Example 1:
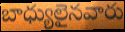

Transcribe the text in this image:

బాధ్యులైనవారు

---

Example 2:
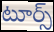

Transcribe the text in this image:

టూర్స్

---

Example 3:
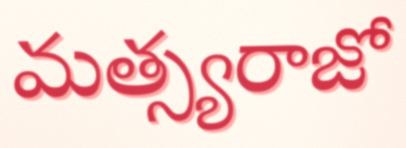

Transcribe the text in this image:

మత్స్యరాజో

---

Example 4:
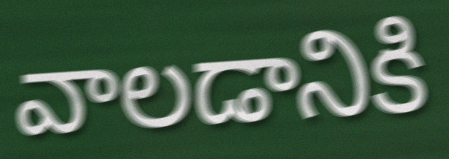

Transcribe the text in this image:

వాలడానికి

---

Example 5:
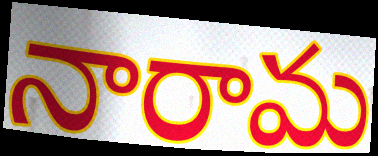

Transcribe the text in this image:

నారామ